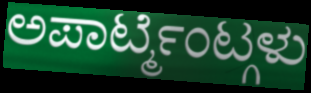
ಅಪಾರ್ಟ್ಮೆಂಟ್ಗಳು